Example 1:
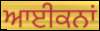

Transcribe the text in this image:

ਆਈਕਨਾਂ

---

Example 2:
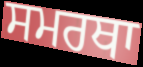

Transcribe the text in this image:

ਸਮਰਥਾ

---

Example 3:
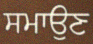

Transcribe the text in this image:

ਸਮਾਉਣ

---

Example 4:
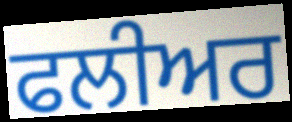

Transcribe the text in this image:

ਫਲੀਅਰ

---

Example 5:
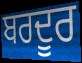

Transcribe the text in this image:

ਬਰਦੂਰ